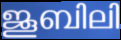
ജൂബിലി